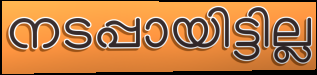
നടപ്പായിട്ടില്ല